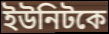
ইউনিটকে